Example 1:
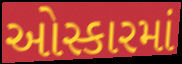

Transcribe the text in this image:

ઓસ્કારમાં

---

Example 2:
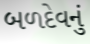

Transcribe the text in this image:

બળદેવનું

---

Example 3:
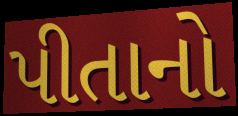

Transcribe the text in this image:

પીતાનો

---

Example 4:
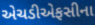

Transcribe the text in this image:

એચડીએફસીના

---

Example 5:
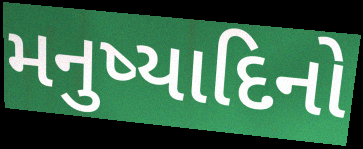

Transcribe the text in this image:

મનુષ્યાદિનો